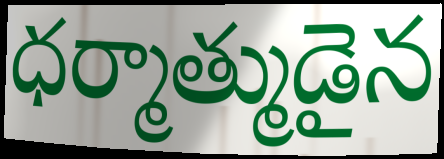
ధర్మాత్ముడైన